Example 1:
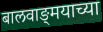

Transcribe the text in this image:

बालवाङ्‌मयाच्या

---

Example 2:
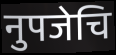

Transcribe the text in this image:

नुपजेचि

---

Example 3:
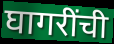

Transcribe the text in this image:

घागरींची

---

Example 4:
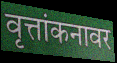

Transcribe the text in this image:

वृत्तांकनावर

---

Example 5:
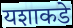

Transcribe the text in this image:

यशाकडे